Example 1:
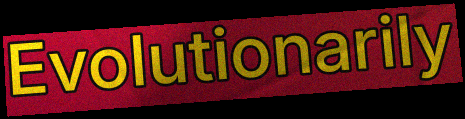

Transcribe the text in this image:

Evolutionarily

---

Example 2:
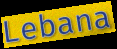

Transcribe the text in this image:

Lebana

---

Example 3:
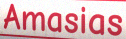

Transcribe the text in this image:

Amasias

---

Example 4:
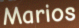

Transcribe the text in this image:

Marios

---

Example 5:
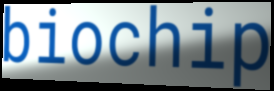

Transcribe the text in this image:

biochip